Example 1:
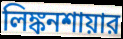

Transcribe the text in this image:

লিঙ্কনশায়ার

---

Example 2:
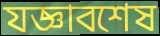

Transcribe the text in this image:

যজ্ঞাবশেষ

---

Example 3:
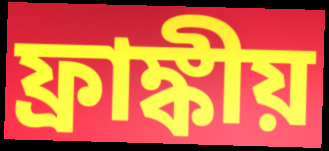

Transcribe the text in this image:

ফ্রাঙ্কীয়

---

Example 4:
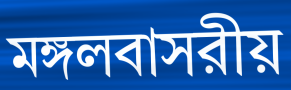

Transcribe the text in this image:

মঙ্গলবাসরীয়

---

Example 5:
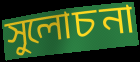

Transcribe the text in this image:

সুলোচনা